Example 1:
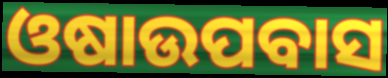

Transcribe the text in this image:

ଓଷାଉପବାସ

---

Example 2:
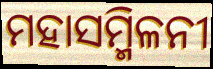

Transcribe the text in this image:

ମହାସମ୍ମିଳନୀ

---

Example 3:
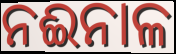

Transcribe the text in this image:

ନଈନାଳ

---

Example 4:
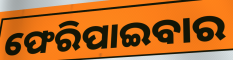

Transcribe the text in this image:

ଫେରିପାଇବାର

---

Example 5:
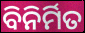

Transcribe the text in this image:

ବିନିର୍ମିତ